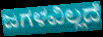
ಜಗಳವಿಲ್ಲದೆ